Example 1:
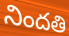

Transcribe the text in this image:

నిందతి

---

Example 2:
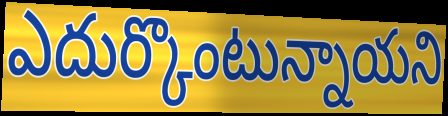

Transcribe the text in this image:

ఎదుర్కొంటున్నాయని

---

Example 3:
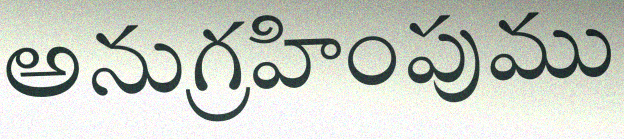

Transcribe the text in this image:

అనుగ్రహింపుము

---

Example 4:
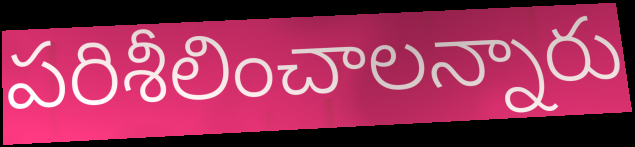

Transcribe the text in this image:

పరిశీలించాలన్నారు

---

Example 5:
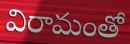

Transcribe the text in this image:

విరామంతో